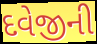
દવેજીની